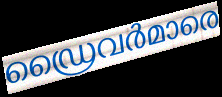
ഡ്രൈവർമാരെ